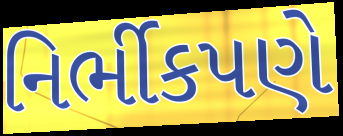
નિર્ભીકપણે